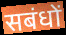
सबंधों